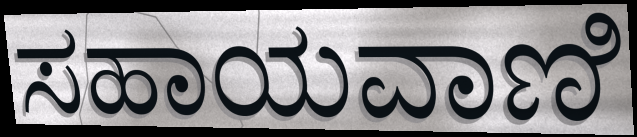
ಸಹಾಯವಾಣಿ